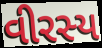
વીરસ્ય